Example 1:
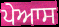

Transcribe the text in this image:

ਪੇਆਸ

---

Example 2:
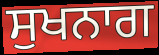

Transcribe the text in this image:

ਸੁਖਨਾਗ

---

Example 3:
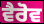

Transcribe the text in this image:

ਵੈਰੋਵ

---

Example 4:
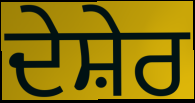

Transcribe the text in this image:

ਦੇਸ਼ੇਰ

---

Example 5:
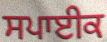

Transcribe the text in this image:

ਸਪਾਈਕ